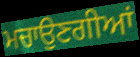
ਮਚਾਉਣਗੀਆਂ